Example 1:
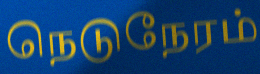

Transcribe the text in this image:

நெடுநேரம்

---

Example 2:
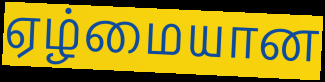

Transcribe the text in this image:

ஏழ்மையான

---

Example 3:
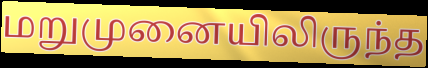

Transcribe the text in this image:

மறுமுனையிலிருந்த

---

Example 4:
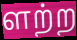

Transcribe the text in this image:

ளற்ற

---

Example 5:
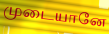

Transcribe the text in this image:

முடையானே